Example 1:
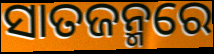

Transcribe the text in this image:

ସାତଜନ୍ମରେ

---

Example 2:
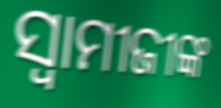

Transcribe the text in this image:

ସ୍ଵାମୀଜୀଙ୍କ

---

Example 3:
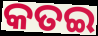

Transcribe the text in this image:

କତଇ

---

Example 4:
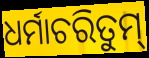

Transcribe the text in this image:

ଧର୍ମାଚରିତୁମ୍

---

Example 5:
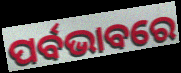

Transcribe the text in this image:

ପର୍ବଭାବରେ